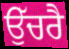
ਉੱਚਰੈ